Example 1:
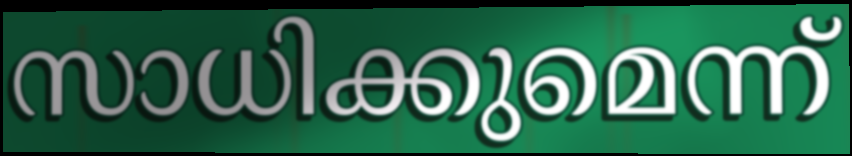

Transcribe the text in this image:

സാധിക്കുമെന്ന്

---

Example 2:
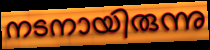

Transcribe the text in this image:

നടനായിരുന്നു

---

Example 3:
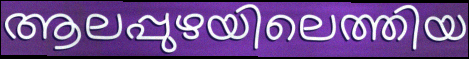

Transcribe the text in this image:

ആലപ്പുഴയിലെത്തിയ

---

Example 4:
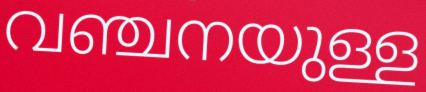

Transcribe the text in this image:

വഞ്ചനയുള്ള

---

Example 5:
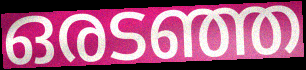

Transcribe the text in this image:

ഒരടഞ്ഞ